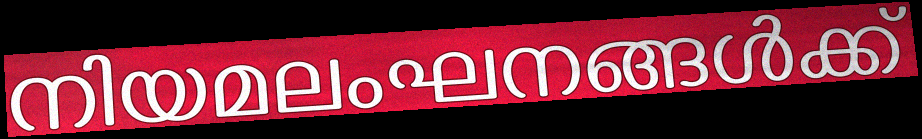
നിയമലംഘനങ്ങൾക്ക്